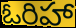
ఓరిహా